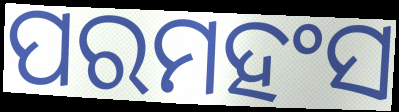
ପରମହଂସ